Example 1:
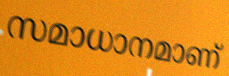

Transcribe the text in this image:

സമാധാനമാണ്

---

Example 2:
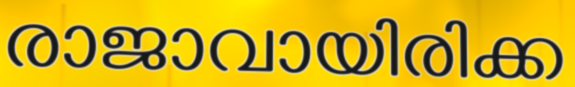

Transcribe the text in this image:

രാജാവായിരിക്ക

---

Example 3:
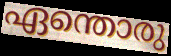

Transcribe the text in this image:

ഏന്തൊരു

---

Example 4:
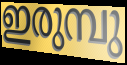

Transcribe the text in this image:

ഇരുമ്പു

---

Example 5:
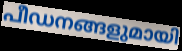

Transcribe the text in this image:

പീഡനങ്ങളുമായി